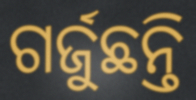
ଗର୍ଜୁଛନ୍ତି